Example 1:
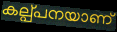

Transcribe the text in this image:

കല്പ്പനയാണ്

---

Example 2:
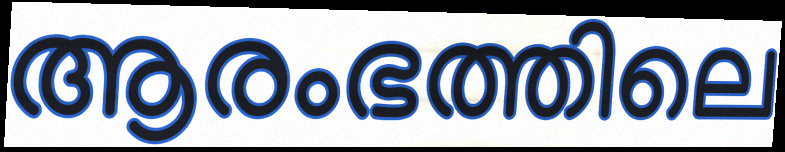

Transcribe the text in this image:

ആരംഭത്തിലെ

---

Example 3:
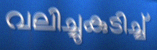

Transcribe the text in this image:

വലിച്ചുകുടിച്ച്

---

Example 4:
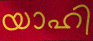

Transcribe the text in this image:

യാഹി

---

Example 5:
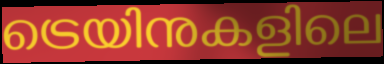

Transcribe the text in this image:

ട്രെയിനുകളിലെ